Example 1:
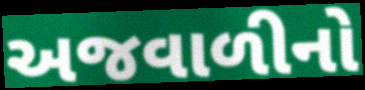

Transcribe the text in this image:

અજવાળીનો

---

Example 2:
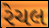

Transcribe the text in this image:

રેચલ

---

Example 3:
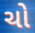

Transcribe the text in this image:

ચો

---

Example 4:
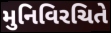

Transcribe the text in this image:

મુનિવિરચિતે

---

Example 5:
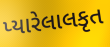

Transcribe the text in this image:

પ્યારેલાલકૃત